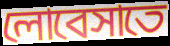
লোবেসাতে